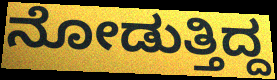
ನೋಡುತ್ತಿದ್ದ